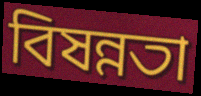
বিষন্নতা